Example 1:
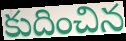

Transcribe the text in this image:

కుదించిన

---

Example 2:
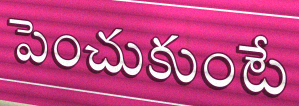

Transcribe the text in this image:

పెంచుకుంటే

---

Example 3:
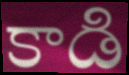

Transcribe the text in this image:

కాడి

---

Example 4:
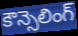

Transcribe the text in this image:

కౌన్సెలింగ్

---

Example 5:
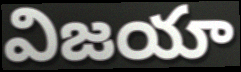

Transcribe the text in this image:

విజయా